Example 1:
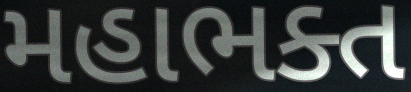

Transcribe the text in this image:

મહાભક્ત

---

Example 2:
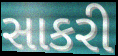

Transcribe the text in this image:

સાકરી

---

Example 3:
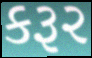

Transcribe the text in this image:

કરૂર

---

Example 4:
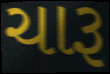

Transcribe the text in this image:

ચારૂ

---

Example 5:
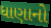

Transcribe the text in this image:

ધાણાનો